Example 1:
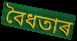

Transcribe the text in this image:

বৈধতাৰ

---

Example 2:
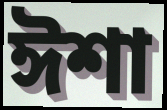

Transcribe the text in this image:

ঈশা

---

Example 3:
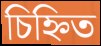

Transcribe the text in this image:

চিহ্নিত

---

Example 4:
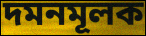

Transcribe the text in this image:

দমনমূলক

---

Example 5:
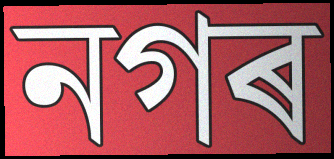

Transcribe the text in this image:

নগৰ